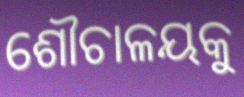
ଶୌଚାଳୟକୁ